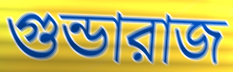
গুন্ডারাজ